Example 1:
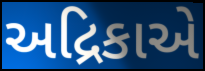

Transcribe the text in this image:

અદ્રિકાએ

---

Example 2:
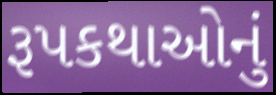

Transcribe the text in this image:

રૂપકથાઓનું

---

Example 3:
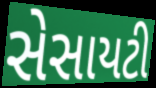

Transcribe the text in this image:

સેસાયટી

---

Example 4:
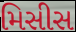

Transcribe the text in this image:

મિસીસ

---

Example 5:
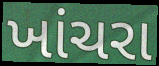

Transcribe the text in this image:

ખાંચરા